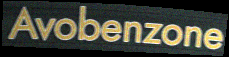
Avobenzone